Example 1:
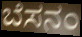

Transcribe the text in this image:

ಬೆಸನಂ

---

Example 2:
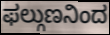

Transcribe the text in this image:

ಫಲ್ಗುಣನಿಂದ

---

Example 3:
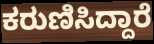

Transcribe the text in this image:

ಕರುಣಿಸಿದ್ದಾರೆ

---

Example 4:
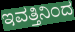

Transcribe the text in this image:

ಇವತ್ತಿನಿಂದ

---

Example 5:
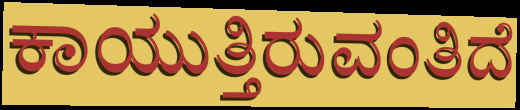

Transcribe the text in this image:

ಕಾಯುತ್ತಿರುವಂತಿದೆ